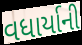
વધાર્યાની